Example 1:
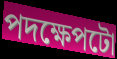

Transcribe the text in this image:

পদক্ষেপটো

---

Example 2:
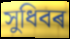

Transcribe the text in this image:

সুধিবৰ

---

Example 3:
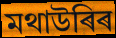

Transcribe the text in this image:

মথাউৰিৰ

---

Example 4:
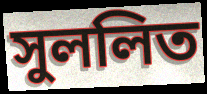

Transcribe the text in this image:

সুললিত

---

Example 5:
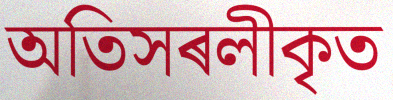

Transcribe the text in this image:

অতিসৰলীকৃত